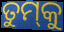
ତୁମ୍‌କୁ